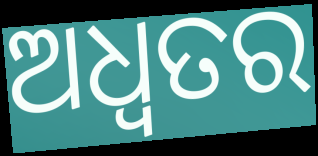
ଅଧ୍ଵତର